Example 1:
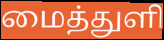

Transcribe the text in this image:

மைத்துளி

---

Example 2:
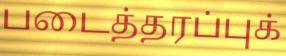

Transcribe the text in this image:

படைத்தரப்புக்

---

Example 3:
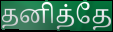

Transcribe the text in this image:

தனித்தே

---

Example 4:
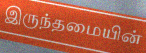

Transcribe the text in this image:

இருந்தமையின்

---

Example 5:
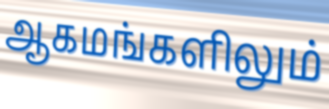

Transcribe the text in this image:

ஆகமங்களிலும்